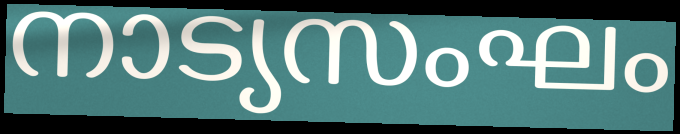
നാട്യസംഘം